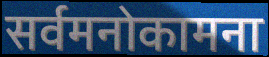
सर्वमनोकामना